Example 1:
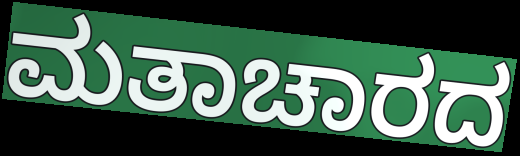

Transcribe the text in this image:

ಮತಾಚಾರದ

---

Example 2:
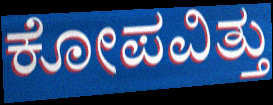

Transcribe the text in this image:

ಕೋಪವಿತ್ತು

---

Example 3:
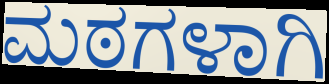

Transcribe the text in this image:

ಮಠಗಳಾಗಿ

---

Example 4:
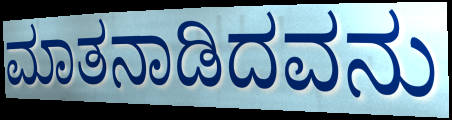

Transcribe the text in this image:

ಮಾತನಾಡಿದವನು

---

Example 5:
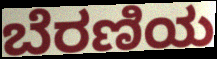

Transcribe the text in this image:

ಬೆರಣಿಯ